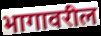
भागावरील